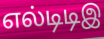
எல்டிடிஇ